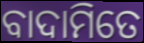
ବାଦାମିତେ